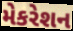
મેકરેશન